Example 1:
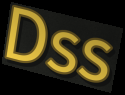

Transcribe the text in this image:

Dss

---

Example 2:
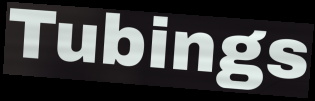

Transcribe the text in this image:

Tubings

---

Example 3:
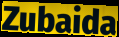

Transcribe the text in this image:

Zubaida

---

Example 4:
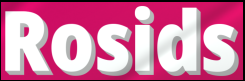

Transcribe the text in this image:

Rosids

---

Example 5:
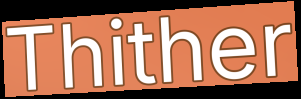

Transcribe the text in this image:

Thither